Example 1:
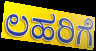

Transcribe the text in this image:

ಲಹರಿಗೆ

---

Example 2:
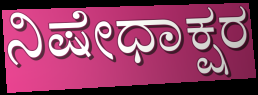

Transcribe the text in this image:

ನಿಷೇಧಾಕ್ಷರ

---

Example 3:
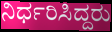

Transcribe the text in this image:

ನಿರ್ಧರಿಸಿದ್ದರು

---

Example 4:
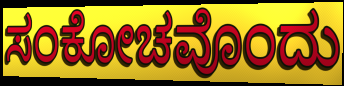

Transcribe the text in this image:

ಸಂಕೋಚವೊಂದು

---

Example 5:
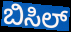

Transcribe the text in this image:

ಬಿಸಿಲ್